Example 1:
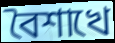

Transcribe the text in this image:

বৈশাখে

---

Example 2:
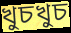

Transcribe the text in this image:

খুচখুচ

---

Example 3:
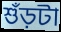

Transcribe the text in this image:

শুঁড়টা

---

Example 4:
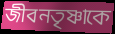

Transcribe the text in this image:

জীবনতৃষ্ণাকে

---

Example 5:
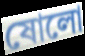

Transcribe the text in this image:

ষোলো